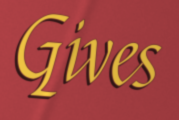
Gives